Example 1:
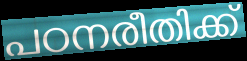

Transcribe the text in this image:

പഠനരീതിക്ക്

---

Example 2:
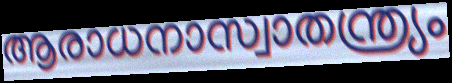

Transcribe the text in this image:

ആരാധനാസ്വാതന്ത്ര്യം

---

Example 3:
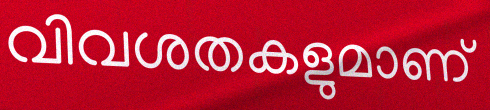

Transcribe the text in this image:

വിവശതകളുമാണ്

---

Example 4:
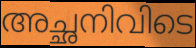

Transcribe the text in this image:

അച്ഛനിവിടെ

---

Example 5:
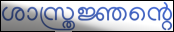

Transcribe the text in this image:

ശാസ്ത്രജ്ഞന്റെ